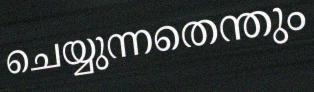
ചെയ്യുന്നതെന്തും